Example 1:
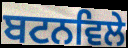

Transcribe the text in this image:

ਬਟਨਵਿਲੇ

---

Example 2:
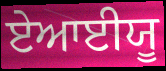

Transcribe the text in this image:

ਏਆਈਯੂ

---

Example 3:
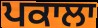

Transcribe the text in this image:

ਪਕਾਲਾ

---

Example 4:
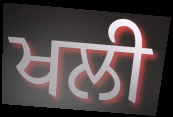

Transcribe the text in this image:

ਖਲੀ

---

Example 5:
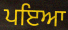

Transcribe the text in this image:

ਪਇਆ